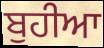
ਬੁਹੀਆ